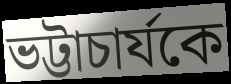
ভট্টাচার্যকে